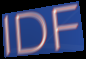
IDF